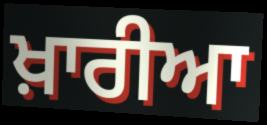
ਖ਼ਾਰੀਆ